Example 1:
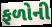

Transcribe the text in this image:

ફળોની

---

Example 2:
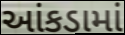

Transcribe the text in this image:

આંકડામાં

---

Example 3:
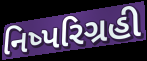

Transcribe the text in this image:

નિષ્પરિગ્રહી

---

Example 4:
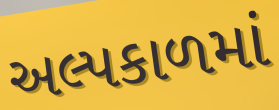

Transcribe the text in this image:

અલ્પકાળમાં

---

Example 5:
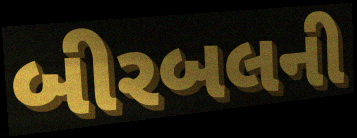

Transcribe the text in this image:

બીરબલની